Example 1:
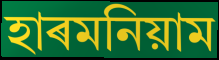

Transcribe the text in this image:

হাৰমনিয়াম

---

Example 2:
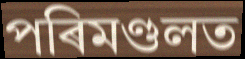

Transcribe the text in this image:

পৰিমণ্ডলত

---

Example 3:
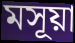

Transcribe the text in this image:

মসূয়া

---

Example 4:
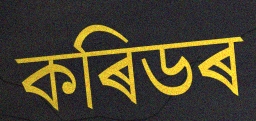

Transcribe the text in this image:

কৰিডৰ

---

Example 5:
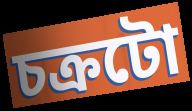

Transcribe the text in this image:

চক্ৰটো